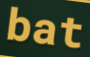
bat